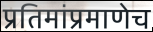
प्रतिमांप्रमाणेच